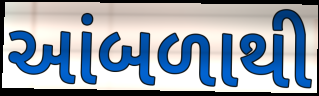
આંબળાથી